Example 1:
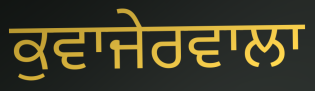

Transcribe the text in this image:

ਕੁਵਾਜੇਰਵਾਲਾ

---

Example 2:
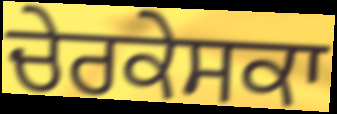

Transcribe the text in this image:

ਚੇਰਕੇਸਕਾ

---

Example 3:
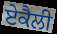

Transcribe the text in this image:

ਏਕੈਲੀ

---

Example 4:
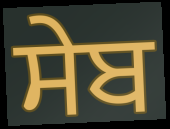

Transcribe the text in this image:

ਸੇਬ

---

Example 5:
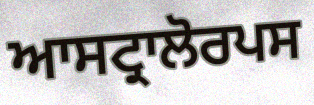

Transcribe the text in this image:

ਆਸਟ੍ਰਾਲੋਰਪਸ